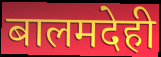
बालमदेही